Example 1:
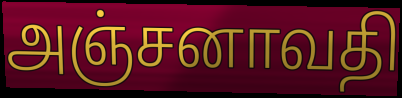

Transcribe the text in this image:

அஞ்சனாவதி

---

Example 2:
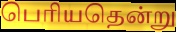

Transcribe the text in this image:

பெரியதென்று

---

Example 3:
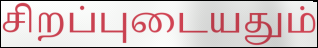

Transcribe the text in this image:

சிறப்புடையதும்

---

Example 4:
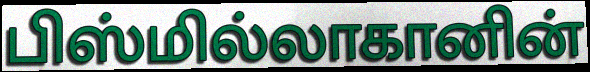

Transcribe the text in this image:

பிஸ்மில்லாகானின்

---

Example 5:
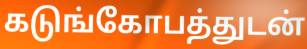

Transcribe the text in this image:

கடுங்கோபத்துடன்